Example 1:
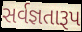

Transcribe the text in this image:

સર્વજ્ઞતારૂપ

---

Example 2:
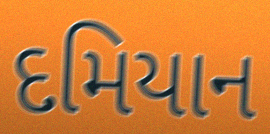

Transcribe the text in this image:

દમિયાન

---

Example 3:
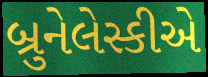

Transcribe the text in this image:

બ્રુનેલેસ્કીએ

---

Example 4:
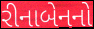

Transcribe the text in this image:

રીનાબેનનો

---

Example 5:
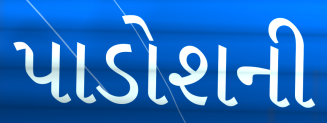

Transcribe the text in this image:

પાડોશની